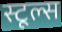
स्टूल्स